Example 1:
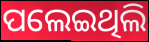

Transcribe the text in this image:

ପଲେଇଥିଲି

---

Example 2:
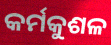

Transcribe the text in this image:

କର୍ମକୁଶଳ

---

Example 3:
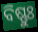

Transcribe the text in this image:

ବିଷ୍ଣୁଃ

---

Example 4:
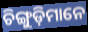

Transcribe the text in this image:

ଚିଙ୍ଗୁଡ଼ିମାନେ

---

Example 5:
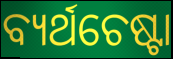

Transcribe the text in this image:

ବ୍ୟର୍ଥଚେଷ୍ଟା